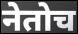
नेतोच